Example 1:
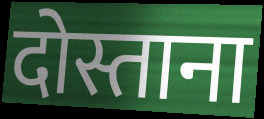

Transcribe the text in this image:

दोस्ताना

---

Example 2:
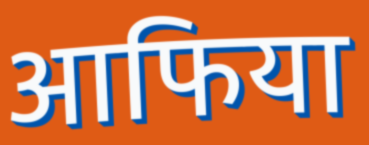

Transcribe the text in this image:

आफिया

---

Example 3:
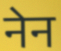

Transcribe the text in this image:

नेन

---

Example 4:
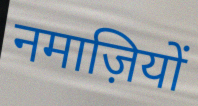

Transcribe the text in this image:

नमाज़ियों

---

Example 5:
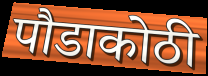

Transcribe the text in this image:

पौडाकोठी